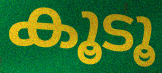
കൂടൂ